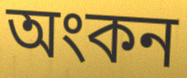
অংকন